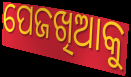
ପେଜଖିଆକୁ